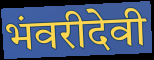
भंवरीदेवी